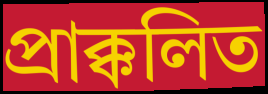
প্রাক্কলিত